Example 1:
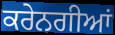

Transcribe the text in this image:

ਕਰੇਨਗੀਆਂ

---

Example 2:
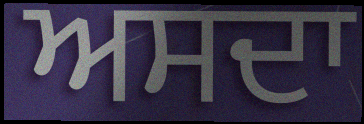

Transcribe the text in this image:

ਅਸਦਾ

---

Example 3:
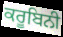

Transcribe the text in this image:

ਕਰੂਬਿਨੀ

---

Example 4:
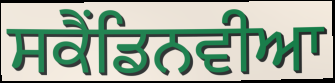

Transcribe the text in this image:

ਸਕੈਂਡਿਨਵੀਆ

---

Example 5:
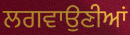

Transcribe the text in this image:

ਲਗਵਾਉਣੀਆਂ